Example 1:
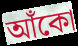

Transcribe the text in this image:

আঁকো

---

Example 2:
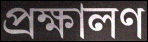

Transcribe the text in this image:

প্রক্ষালণ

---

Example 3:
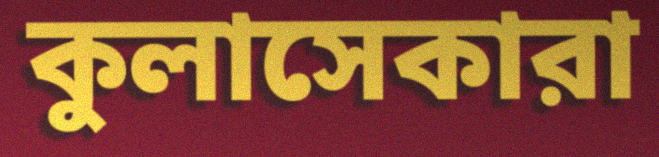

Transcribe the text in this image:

কুলাসেকারা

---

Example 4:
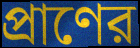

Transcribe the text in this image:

প্রাণের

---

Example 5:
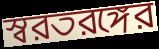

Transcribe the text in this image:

স্বরতরঙ্গের